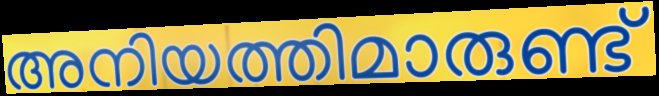
അനിയത്തിമാരുണ്ട്